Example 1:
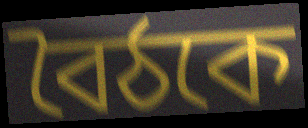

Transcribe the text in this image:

বৈঠকে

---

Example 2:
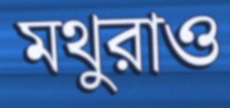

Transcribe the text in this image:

মথুরাও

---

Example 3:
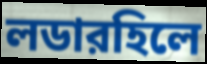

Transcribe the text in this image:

লডারহিলে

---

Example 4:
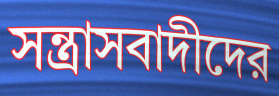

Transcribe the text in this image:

সন্ত্রাসবাদীদের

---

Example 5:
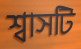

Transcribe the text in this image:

শ্বাসটি